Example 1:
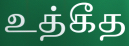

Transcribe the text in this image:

உத்கீத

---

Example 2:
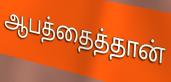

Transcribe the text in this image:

ஆபத்தைத்தான்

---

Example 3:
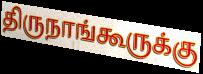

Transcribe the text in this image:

திருநாங்கூருக்கு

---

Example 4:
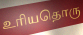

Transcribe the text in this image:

உரியதொரு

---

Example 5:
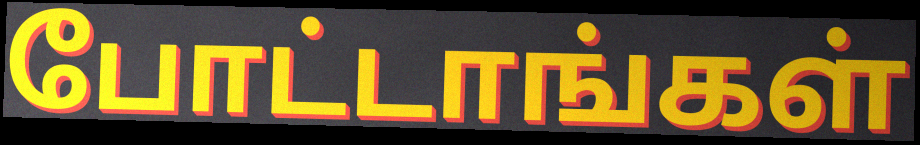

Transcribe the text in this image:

போட்டாங்கள்